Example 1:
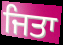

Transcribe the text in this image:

ਜਿਤਾ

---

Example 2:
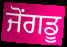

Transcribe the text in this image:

ਜੋਂਗਡੂ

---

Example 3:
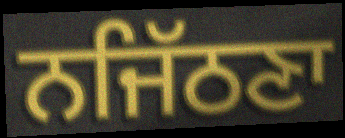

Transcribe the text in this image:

ਨਜਿੱਠਣਾ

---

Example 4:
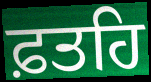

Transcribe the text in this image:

ਫ਼ਤਹਿ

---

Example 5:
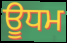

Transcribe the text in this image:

ਊਧਮ